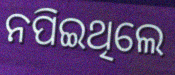
ନପିଇଥିଲେ